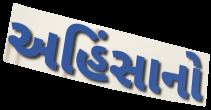
અહિંસાનો